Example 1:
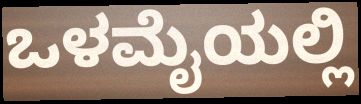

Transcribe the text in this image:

ಒಳಮೈಯಲ್ಲಿ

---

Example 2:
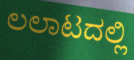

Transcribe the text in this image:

ಲಲಾಟದಲ್ಲಿ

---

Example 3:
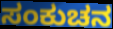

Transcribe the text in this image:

ಸಂಕುಚನ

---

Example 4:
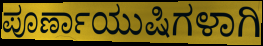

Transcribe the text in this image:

ಪೂರ್ಣಾಯುಷಿಗಳಾಗಿ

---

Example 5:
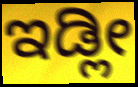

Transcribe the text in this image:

ಇಡ್ಲೀ